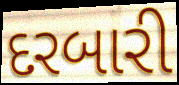
દરબારી